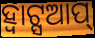
ହ୍ୱାଟ୍ସଆପ୍